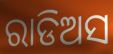
ରାଡିଅସ